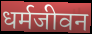
धर्मजीवन